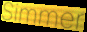
Simmer